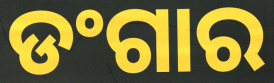
ଡଂଗାର